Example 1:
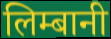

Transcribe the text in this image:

लिम्बानी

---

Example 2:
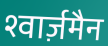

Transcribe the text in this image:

श्वार्ज़मैन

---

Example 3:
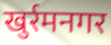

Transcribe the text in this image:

खुर्रमनगर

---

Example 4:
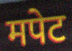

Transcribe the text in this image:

मपेट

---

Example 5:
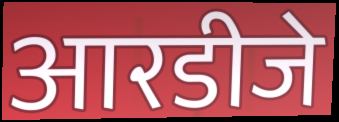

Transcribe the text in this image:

आरडीजे